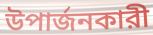
উপার্জনকারী